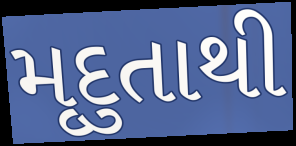
મૃદુતાથી